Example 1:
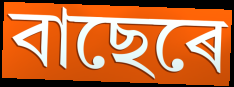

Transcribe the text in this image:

বাছেৰে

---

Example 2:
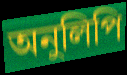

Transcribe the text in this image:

অনুলিপি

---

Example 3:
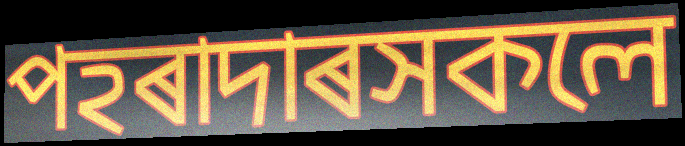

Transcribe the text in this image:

পহৰাদাৰসকলে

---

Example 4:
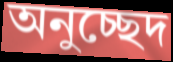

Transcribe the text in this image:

অনুচ্ছেদ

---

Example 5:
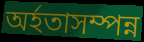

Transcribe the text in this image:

অৰ্হতাসম্পন্ন